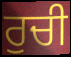
ਰੁਚੀ